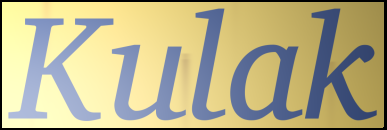
Kulak